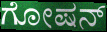
ಗೋಷನ್